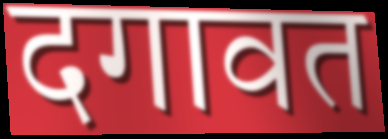
दगावत